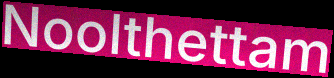
Noolthettam